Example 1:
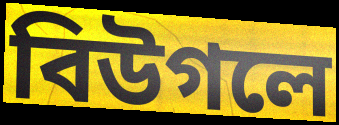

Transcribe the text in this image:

বিউগলে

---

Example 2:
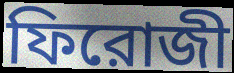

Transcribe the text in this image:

ফিরোজী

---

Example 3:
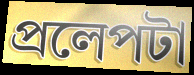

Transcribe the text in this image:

প্রলেপটা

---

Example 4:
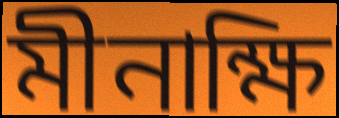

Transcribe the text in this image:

মীনাক্ষি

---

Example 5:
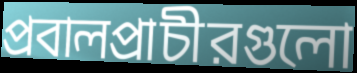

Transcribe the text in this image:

প্রবালপ্রাচীরগুলো